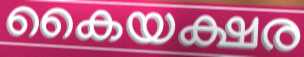
കൈയക്ഷര